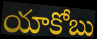
యాకోబు